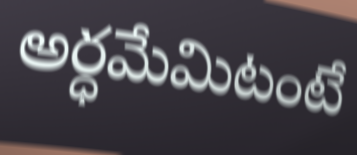
అర్ధమేమిటంటే